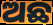
ଅଛ